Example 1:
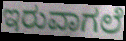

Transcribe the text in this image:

ಇರುವಾಗಲೆ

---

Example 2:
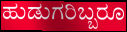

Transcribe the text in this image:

ಹುಡುಗರಿಬ್ಬರೂ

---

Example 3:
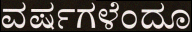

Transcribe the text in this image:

ವರ್ಷಗಳೆಂದೂ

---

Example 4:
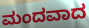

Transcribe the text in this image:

ಮಂದವಾದ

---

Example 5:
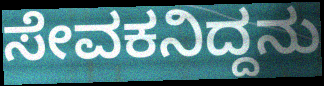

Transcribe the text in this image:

ಸೇವಕನಿದ್ದನು